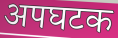
अपघटक